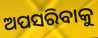
ଅପସରିବାକୁ